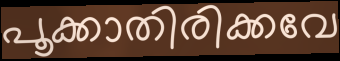
പൂക്കാതിരിക്കവേ